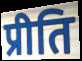
प्रीति